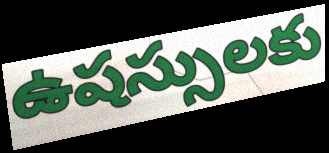
ఉషస్సులకు